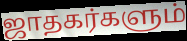
ஜாதகர்களும்